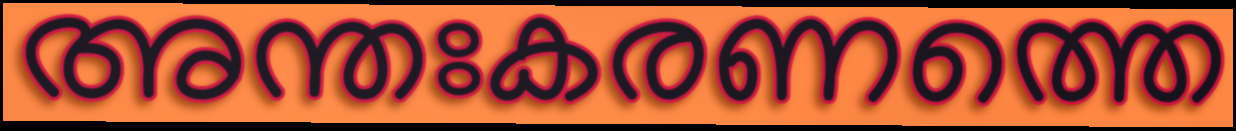
അന്തഃകരണത്തെ